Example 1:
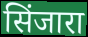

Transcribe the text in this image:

सिंजारा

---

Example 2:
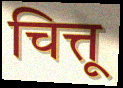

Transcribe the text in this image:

चित्तू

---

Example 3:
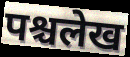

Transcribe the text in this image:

पश्चलेख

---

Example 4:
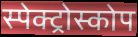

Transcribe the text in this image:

स्पेक्ट्रोस्कोप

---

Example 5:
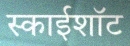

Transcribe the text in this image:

स्काईशॉट